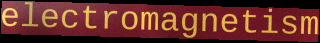
electromagnetism